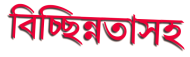
বিচ্ছিন্নতাসহ